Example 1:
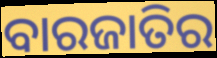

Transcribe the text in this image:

ବାରଜାତିର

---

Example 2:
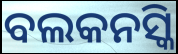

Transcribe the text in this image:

ବଲକନସ୍କି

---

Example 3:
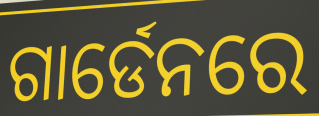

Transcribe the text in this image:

ଗାର୍ଡେନରେ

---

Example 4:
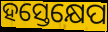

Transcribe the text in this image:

ହସ୍ତେକ୍ଷେପ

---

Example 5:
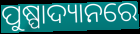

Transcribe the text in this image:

ପୁଷ୍ପାଦ୍ୟାନରେ